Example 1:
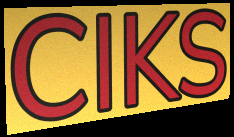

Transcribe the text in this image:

CIKS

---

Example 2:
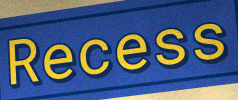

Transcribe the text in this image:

Recess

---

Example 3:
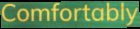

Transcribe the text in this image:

Comfortably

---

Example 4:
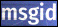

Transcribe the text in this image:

msgid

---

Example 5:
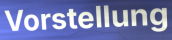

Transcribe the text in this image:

Vorstellung